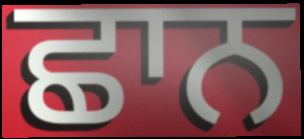
ਛਾਨ